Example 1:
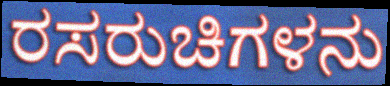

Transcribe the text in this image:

ರಸರುಚಿಗಳನು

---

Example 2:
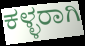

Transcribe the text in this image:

ಕಳ್ಳರಾಗಿ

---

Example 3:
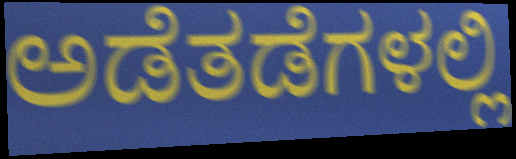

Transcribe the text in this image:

ಅಡೆತಡೆಗಳಲ್ಲಿ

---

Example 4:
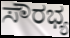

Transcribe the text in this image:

ಸೌರಭ್ಯ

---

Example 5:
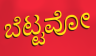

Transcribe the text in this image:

ಬೆಟ್ಟವೋ